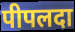
पीपलदा